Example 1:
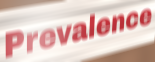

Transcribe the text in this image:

Prevalence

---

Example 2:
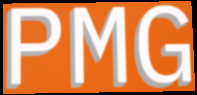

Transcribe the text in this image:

PMG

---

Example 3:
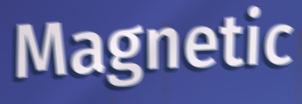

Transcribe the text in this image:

Magnetic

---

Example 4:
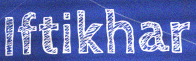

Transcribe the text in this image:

Iftikhar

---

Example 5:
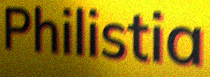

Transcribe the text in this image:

Philistia